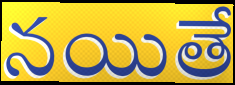
నయితే